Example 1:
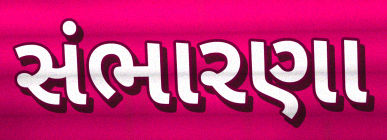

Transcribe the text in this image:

સંભારણા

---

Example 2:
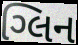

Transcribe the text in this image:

ગ્લિન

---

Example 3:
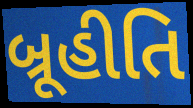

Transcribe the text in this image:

બ્રૂહીતિ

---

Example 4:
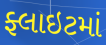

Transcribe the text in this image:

ફ્લાઇટમાં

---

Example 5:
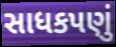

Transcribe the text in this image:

સાધકપણું